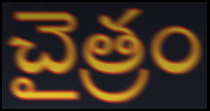
చైత్రం